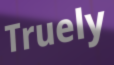
Truely